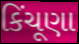
કિંચૂણા